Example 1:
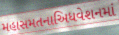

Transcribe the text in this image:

મહાસમતનાઅિધવેશનમાં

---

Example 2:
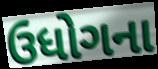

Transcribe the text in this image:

ઉધોગના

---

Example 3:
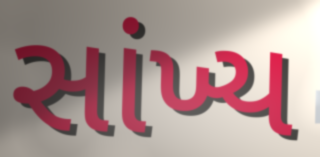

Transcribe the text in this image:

સાંખ્ય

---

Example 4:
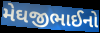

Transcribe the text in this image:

મેઘજીભાઈનો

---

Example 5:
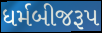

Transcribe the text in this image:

ધર્મબીજરૂપ